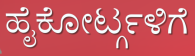
ಹೈಕೋರ್ಟ್ಗಳಿಗೆ